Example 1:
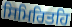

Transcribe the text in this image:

ਸਿਮਿਰਿਤਹਿ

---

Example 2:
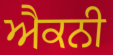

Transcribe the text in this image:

ਐਕਨੀ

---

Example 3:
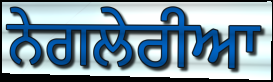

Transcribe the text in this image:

ਨੇਗਲੇਰੀਆ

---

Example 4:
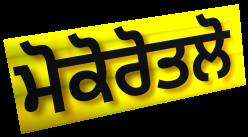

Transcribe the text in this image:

ਮੋਕੋਰੋਤਲੋ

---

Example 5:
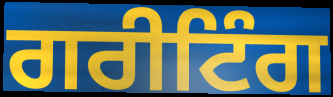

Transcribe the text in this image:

ਗਰੀਟਿੰਗ